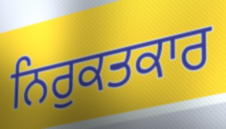
ਨਿਰੁਕਤਕਾਰ